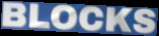
BLOCKS